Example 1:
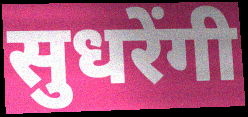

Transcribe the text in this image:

सुधरेंगी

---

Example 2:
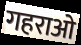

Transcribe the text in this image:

गहराओ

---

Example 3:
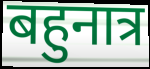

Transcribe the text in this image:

बहुनात्र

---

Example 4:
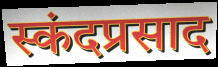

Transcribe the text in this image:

स्कंदप्रसाद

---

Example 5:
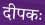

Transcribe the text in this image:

दीपकः